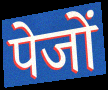
पेजों